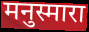
मनुस्मारा